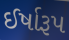
ઈર્ષારૂપ